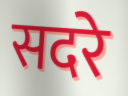
सदरे